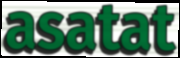
asatat